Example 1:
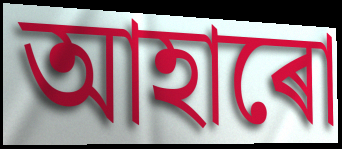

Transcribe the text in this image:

আহাৰো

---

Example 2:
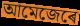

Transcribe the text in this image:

আমেজেৰে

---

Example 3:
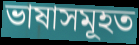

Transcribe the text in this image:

ভাষাসমূহত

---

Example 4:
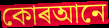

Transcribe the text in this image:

কোৰআনে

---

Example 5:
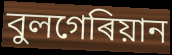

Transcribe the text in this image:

বুলগেৰিয়ান